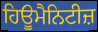
ਹਿਊਮੈਨਿਟੀਜ਼